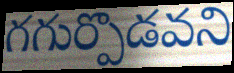
గగుర్పొడవని